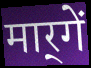
मार्गें